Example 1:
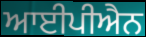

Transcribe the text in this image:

ਆਈਪੀਐਨ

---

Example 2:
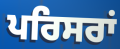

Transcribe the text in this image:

ਪਰਿਸਰਾਂ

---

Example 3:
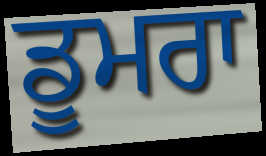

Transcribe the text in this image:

ਡੂਮਰਾ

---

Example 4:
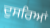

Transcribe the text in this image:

ਦੁਸਰਿਆਂ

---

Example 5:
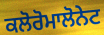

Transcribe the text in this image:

ਕਲੋਰੋਮਾਲੋਨੇਟ